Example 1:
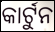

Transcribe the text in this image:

କାର୍ଟୁନ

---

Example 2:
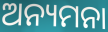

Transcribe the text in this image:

ଅନ୍ୟମନା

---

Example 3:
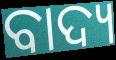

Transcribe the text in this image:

ବାଦ୍ଯ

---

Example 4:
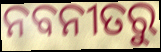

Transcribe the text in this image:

ନବନୀତରୁ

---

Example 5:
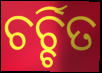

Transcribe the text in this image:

ଚର୍ଚ୍ଚିତ